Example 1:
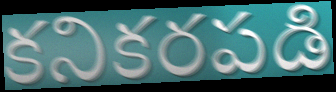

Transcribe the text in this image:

కనికరపడి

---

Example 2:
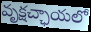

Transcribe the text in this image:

వృక్షచ్ఛాయలో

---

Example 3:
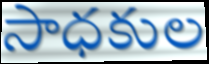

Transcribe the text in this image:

సాధకుల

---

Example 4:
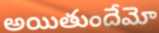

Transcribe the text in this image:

అయితుందేమో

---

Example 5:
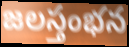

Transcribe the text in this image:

జలస్తంభన